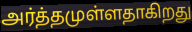
அர்த்தமுள்ளதாகிறது